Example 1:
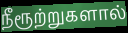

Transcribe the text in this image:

நீரூற்றுகளால்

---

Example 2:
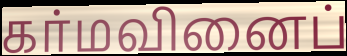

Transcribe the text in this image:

கர்மவினைப்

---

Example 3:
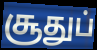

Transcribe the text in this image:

சூதுப்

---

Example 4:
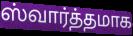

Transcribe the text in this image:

ஸ்வார்த்தமாக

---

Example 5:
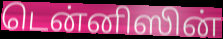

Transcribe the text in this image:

டென்னிஸின்